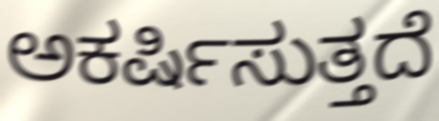
ಅಕರ್ಷಿಸುತ್ತದೆ